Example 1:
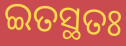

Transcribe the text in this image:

ଇତସ୍ଥତଃ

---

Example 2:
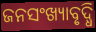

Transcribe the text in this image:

ଜନସଂଖ୍ୟାବୃଦ୍ଧି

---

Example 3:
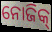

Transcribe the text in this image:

ନୋଜିକ୍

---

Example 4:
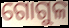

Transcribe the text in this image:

ଗୋଗୁଳ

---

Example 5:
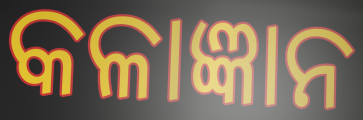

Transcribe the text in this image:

କଳାଜ୍ଞାନ